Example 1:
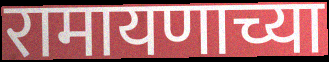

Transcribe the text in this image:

रामायणाच्या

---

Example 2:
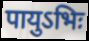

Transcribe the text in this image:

पायुऽभिः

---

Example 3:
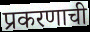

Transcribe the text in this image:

प्रकरणाची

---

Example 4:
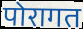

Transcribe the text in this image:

पोरागत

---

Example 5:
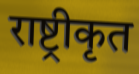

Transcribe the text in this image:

राष्ट्रीकृत